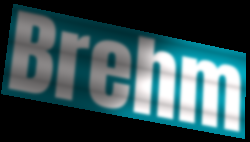
Brehm